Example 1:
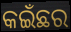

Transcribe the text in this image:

କଇଁଛର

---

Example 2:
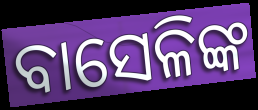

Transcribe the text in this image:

ବାସେଳିଙ୍କ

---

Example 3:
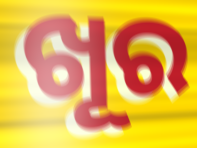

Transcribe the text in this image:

ଖୂର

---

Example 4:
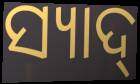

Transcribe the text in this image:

ସ୍ୟାଦ୍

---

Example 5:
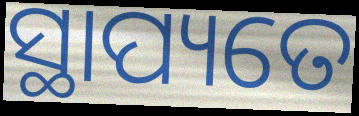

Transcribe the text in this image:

ସ୍ଥାପ୍ୟତେ